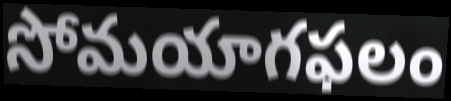
సోమయాగఫలం